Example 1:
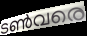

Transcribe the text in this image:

ടൺവരെ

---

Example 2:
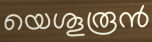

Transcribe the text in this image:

യെശൂരൂൻ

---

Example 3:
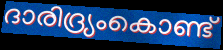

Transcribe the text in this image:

ദാരിദ്ര്യംകൊണ്ട്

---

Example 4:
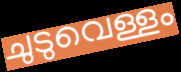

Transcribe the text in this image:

ചുടുവെള്ളം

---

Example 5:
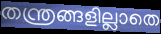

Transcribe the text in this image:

തന്ത്രങ്ങളില്ലാതെ